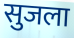
सुजला